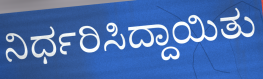
ನಿರ್ಧರಿಸಿದ್ದಾಯಿತು